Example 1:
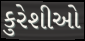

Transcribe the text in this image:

કુરેશીઓ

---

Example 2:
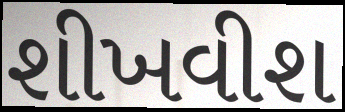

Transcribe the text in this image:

શીખવીશ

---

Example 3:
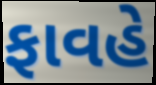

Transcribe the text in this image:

ફાવહે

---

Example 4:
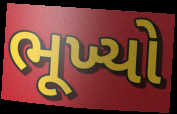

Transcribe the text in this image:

ભૂખ્યો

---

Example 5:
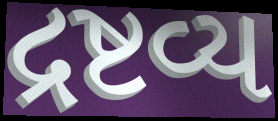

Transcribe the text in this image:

દ્રષ્ટવ્ય